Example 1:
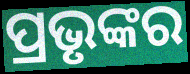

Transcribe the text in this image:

ପ୍ରଭୃଙ୍କର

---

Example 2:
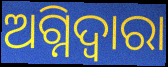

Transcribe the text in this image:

ଅଗ୍ନିଦ୍ଵାରା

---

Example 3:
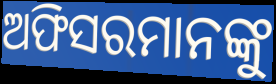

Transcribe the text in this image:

ଅଫିସରମାନଙ୍କୁ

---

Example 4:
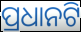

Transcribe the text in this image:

ପ୍ରଧାନଟି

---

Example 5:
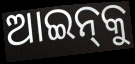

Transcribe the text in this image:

ଆଇନ୍‍କୁ